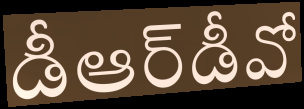
డీఆర్‌డీవో